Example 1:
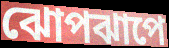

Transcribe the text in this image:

ঝোপঝাপে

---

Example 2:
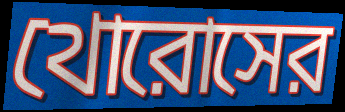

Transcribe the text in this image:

থোরোসের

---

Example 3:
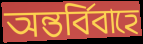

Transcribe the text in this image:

অন্তর্বিবাহে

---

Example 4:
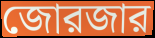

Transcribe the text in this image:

জোরজার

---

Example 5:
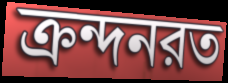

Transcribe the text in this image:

ক্রন্দনরত